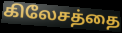
கிலேசத்தை